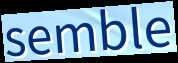
semble